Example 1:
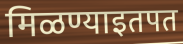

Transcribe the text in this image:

मिळण्याइतपत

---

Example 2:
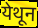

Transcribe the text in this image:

येथून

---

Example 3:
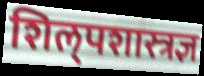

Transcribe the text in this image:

शिल्पशास्त्रज्ञ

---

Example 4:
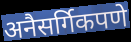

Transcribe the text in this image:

अनैसर्गिकपणे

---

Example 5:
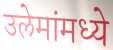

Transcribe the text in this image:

उलेमांमध्ये